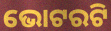
ଭୋଟରଟି